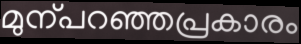
മുന്പറഞ്ഞപ്രകാരം